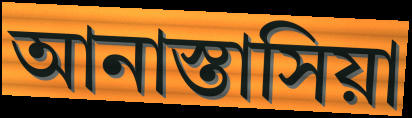
আনাস্তাসিয়া